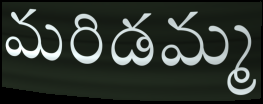
మరిడమ్మ